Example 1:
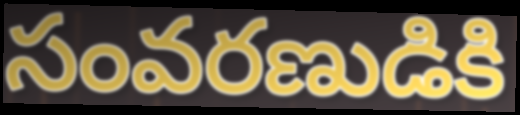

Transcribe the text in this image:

సంవరణుడికి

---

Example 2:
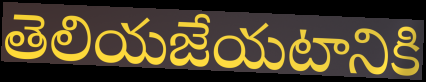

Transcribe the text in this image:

తెలియజేయటానికి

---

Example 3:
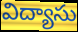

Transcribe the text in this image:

విద్యాసు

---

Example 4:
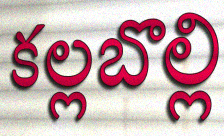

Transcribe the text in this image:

కల్లబొల్లి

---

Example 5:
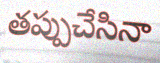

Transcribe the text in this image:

తప్పుచేసినా